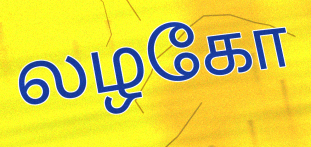
லழகோ